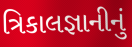
ત્રિકાલજ્ઞાનીનું